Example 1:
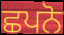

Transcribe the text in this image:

ਛਪਨੋ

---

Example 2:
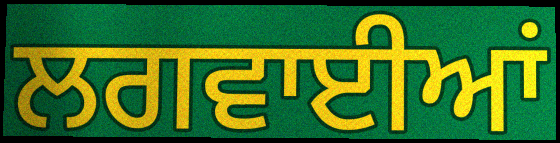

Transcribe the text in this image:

ਲਗਵਾਈਆਂ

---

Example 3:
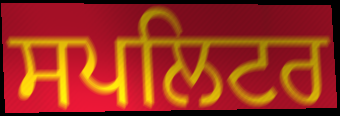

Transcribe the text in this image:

ਸਪਲਿਟਰ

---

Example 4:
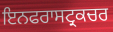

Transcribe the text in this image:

ਇਨਫਰਾਸਟ੍ਰਕਚਰ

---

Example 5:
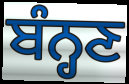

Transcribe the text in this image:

ਬੰਨ੍ਹਣ